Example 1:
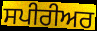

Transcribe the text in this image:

ਸਪੀਰੀਅਰ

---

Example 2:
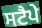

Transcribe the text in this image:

ਸਟੈਪੇ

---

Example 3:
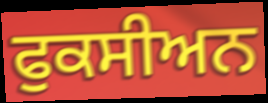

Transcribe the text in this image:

ਫੁਕਸੀਅਨ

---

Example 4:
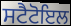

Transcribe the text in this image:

ਸਟੈਟੋਇਲ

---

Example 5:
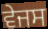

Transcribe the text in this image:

ਵੇਜਸ